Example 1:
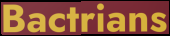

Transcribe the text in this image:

Bactrians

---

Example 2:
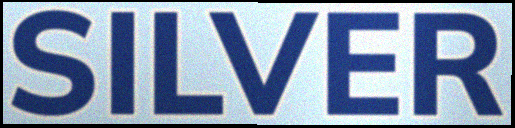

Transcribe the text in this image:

SILVER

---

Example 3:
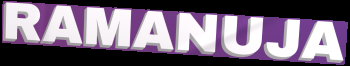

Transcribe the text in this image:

RAMANUJA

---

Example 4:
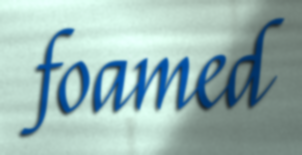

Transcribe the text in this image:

foamed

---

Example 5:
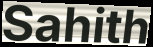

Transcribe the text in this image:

Sahith